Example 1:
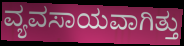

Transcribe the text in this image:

ವ್ಯವಸಾಯವಾಗಿತ್ತು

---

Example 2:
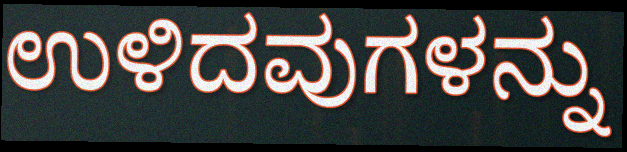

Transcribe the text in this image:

ಉಳಿದವುಗಳನ್ನು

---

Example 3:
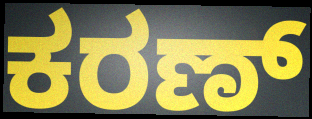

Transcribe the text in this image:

ಕರಣ್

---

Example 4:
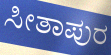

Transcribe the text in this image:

ಸೀತಾಪುರ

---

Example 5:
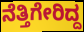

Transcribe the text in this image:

ನೆತ್ತಿಗೇರಿದ್ದ